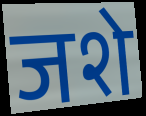
जशे